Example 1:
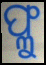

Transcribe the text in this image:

ଫ୍ଳୁ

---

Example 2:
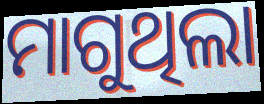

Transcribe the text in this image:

ମାଗୁଥିଲା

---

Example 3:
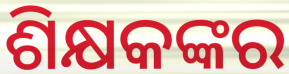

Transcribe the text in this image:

ଶିକ୍ଷକଙ୍କର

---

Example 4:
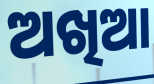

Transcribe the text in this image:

ଅଖିଆ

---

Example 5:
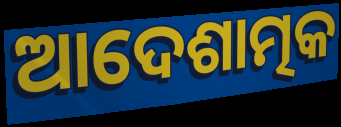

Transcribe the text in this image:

ଆଦେଶାତ୍ମକ